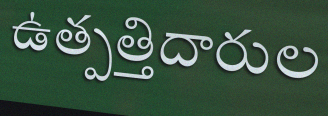
ఉత్పత్తిదారుల